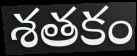
శతకం